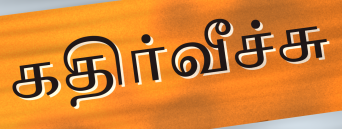
கதிர்வீச்சு